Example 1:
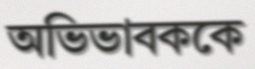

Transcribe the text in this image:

অভিভাবককে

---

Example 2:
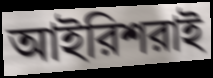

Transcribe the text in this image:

আইরিশরাই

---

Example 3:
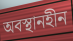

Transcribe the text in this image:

অবস্থানহীন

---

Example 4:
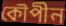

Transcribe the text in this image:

কৌপীন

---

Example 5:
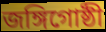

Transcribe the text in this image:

জঙ্গিগোষ্ঠী